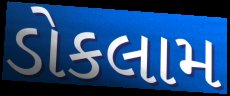
ડોકલામ